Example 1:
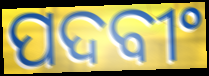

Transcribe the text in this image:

ପଦବୀଂ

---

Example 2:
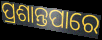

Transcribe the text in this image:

ପ୍ରଶାନ୍ତପାରେ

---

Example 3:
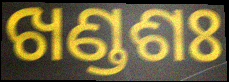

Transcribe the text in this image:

ଖଣ୍ଡଶଃ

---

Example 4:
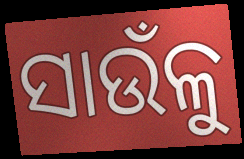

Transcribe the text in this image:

ସାଉଁଳୁ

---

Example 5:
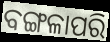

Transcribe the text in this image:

ବଙ୍ଗଳାପରି